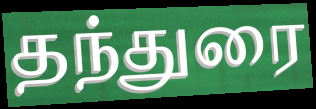
தந்துரை